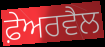
ਫ਼ੇਅਰਵੈਲ